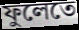
ফুলেতে